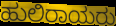
ಹುಲಿರಾಯರು